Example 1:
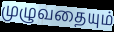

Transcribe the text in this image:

முழுவதையும்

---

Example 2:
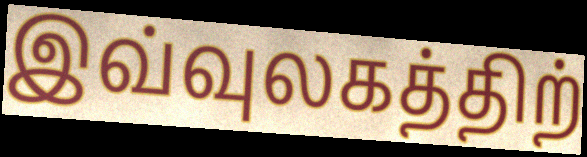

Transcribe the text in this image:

இவ்வுலகத்திற்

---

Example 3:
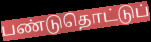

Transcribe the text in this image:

பண்டுதொட்டுப்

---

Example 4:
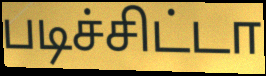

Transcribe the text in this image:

படிச்சிட்டா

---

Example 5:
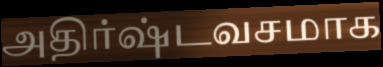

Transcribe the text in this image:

அதிர்ஷ்டவசமாக